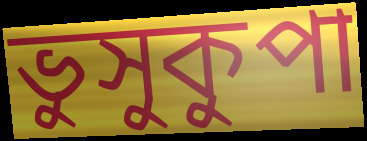
ভুসুকুপা